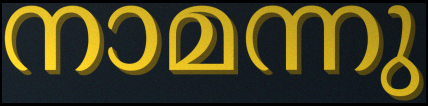
നാമന്നു